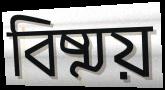
বিষ্ময়